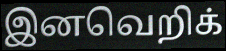
இனவெறிக்